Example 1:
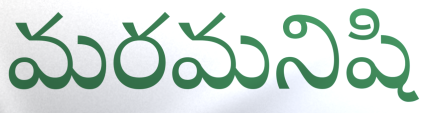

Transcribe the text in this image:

మరమనిషి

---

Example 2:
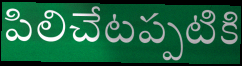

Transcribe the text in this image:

పిలిచేటప్పటికి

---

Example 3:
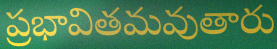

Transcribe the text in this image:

ప్రభావితమవుతారు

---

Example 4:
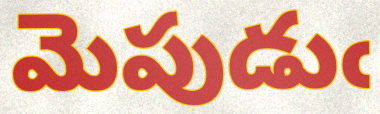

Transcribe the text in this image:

మెపుడుఁ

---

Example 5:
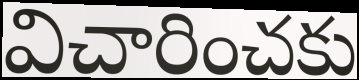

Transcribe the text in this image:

విచారించకు